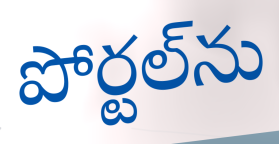
పోర్టల్‌ను